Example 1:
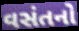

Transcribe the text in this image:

વસંતનો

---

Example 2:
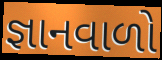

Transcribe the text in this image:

જ્ઞાનવાળો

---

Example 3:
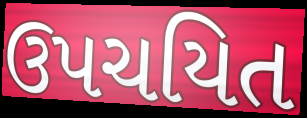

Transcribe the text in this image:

ઉપચયિત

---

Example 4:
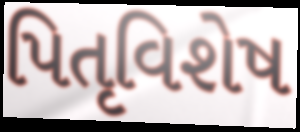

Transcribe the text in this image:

પિતૃવિશેષ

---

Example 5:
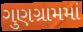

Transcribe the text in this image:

ગુણગ્રામમાં